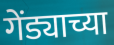
गेंड्याच्या